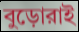
বুড়োরাই